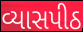
વ્યાસપીઠ